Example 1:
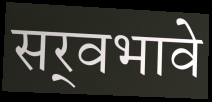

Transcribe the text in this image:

सर्वभावे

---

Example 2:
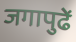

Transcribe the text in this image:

जगापुढें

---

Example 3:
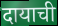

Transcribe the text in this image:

दायाची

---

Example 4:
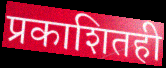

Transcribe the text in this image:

प्रकाशितही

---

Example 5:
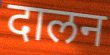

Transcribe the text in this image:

दालन